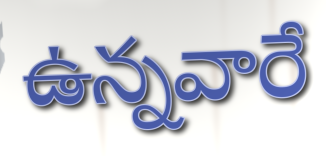
ఉన్నవారే